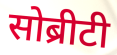
सोब्रीटी